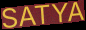
SATYA